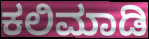
ಕಲಿಮಾಡಿ